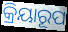
କ୍ରିୟାରୂପ